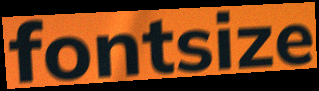
fontsize